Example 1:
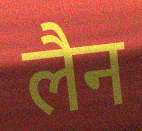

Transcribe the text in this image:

लैन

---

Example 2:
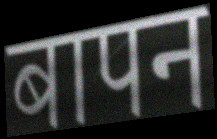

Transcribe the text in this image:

बापन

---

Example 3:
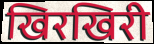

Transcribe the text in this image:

खिरखिरी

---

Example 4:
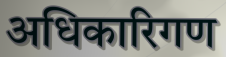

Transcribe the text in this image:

अधिकारिगण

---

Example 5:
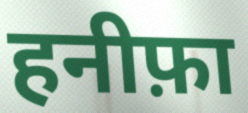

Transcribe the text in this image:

हनीफ़ा